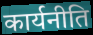
कार्यनीति